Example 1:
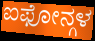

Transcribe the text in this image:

ಐಫೋನ್ಗಳ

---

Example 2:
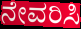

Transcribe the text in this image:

ನೇವರಿಸಿ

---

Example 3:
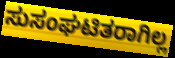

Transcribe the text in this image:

ಸುಸಂಘಟಿತರಾಗಿಲ್ಲ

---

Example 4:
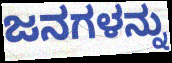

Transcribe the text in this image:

ಜನಗಳನ್ನು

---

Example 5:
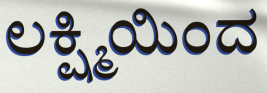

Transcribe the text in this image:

ಲಕ್ಷ್ಮಿಯಿಂದ